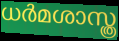
ധർമശാസ്ത്ര